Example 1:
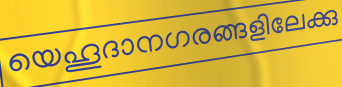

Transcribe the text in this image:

യെഹൂദാനഗരങ്ങളിലേക്കു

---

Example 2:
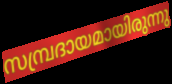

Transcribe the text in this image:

സമ്പ്രദായമായിരുന്നു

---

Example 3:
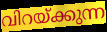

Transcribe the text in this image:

വിറയ്ക്കുന്ന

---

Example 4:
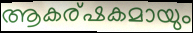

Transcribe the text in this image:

ആകര്ഷകമായും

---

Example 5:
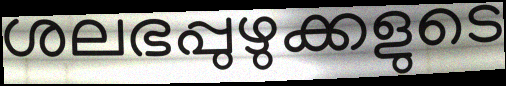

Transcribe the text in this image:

ശലഭപ്പുഴുക്കളുടെ